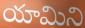
యామిని